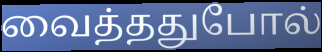
வைத்ததுபோல்